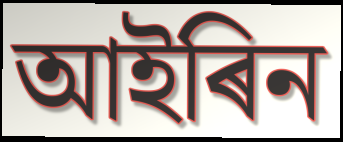
আইৰিন